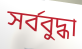
সৰ্ববুদ্ধা